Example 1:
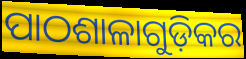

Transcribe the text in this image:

ପାଠଶାଳାଗୁଡ଼ିକର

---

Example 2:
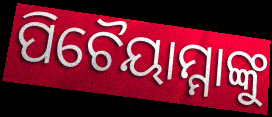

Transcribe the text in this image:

ପିଚୈୟାମ୍ମାଙ୍କୁ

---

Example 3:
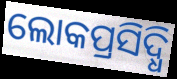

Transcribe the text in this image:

ଲୋକପ୍ରସିଦ୍ଧି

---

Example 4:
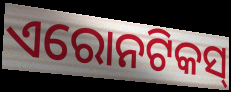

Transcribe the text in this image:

ଏରୋନଟିକସ୍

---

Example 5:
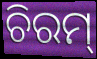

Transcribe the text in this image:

ଚିରମ୍